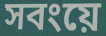
সবংয়ে